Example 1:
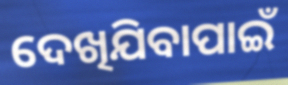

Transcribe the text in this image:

ଦେଖିଯିବାପାଇଁ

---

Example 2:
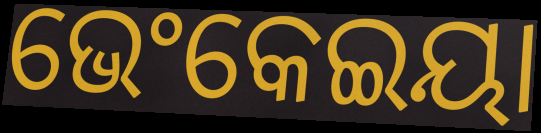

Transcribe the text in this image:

ଭେଂକେଇୟା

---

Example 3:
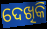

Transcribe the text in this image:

ଦେଖିକି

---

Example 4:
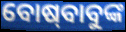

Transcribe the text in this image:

ବୋଷ୍‍ବାବୁଙ୍କ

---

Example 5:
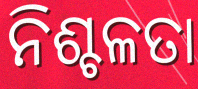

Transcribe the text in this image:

ନିଶ୍ଚଳତା